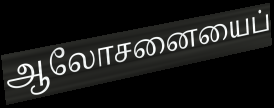
ஆலோசனையைப்